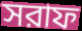
সরাফ